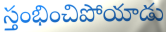
స్తంభించిపోయాడు